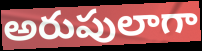
అరుపులాగా